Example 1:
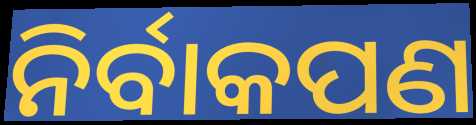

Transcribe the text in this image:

ନିର୍ବାକପଣ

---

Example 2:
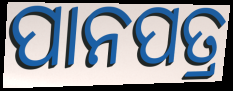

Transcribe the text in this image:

ପାନପତ୍ର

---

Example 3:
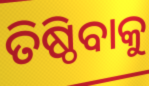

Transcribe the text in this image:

ତିଷ୍ଠିବାକୁ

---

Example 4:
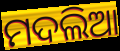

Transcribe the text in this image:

ମଦଲିଆ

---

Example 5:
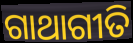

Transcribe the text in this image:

ଗାଥାଗୀତି